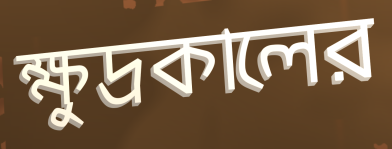
ক্ষুদ্রকালের